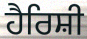
ਹੈਰਿਸ਼ੀ